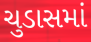
ચુડાસમાં